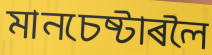
মানচেষ্টাৰলৈ